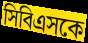
সিবিএসকে